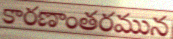
కారణాంతరమున